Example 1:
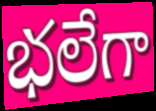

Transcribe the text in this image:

భలేగా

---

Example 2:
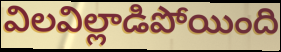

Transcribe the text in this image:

విలవిల్లాడిపోయింది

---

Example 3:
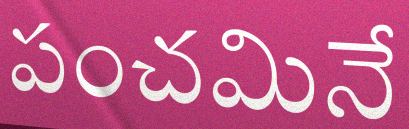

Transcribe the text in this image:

పంచమినే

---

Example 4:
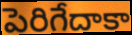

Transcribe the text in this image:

పెరిగేదాకా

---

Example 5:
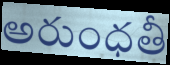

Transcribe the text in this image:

అరుంధతీ